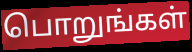
பொறுங்கள்